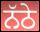
ਨੱਠੇ